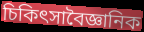
চিকিৎসাবৈজ্ঞানিক